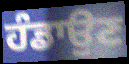
ਹੰਡਾਉਣ